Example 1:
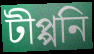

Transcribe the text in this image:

টীপ্পনি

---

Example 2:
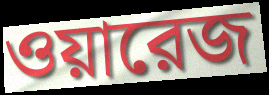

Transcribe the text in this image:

ওয়ারেজ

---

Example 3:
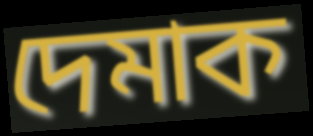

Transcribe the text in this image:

দেমাক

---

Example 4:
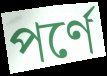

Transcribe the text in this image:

পর্ণে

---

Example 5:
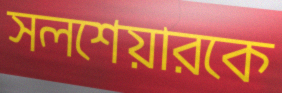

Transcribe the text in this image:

সলশেয়ারকে